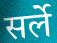
सर्ले